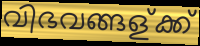
വിഭവങ്ങള്ക്ക്